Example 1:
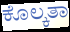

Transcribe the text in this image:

ಕೊಲ್ಕತಾ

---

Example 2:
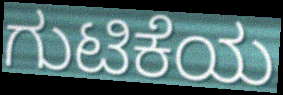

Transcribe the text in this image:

ಗುಟಿಕೆಯ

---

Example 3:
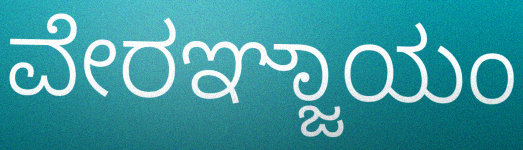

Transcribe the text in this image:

ವೇರಞ್ಜಾಯಂ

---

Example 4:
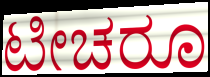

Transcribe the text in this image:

ಟೀಚರೂ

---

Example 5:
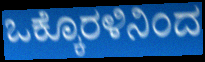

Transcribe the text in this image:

ಒಕ್ಕೊರಳಿನಿಂದ